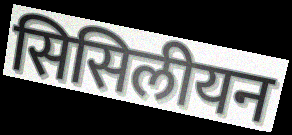
सिसिलीयन